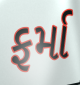
ફર્મા